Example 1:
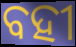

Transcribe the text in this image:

ବହୀ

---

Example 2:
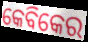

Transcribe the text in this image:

କେବିକେର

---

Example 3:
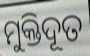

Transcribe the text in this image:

ମୁକ୍ତିଦୂତ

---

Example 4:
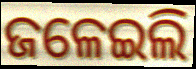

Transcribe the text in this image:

ଜଳେଇଲି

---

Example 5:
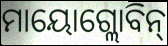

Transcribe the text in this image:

ମାୟୋଗ୍ଲୋବିନ୍